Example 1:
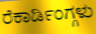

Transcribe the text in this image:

ರೆಕಾರ್ಡಿಂಗ್ಗಳು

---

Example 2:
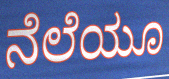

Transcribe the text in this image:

ನೆಲೆಯೂ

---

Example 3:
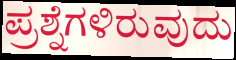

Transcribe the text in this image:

ಪ್ರಶ್ನೆಗಳಿರುವುದು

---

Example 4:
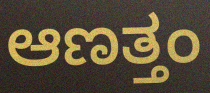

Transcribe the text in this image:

ಆಣತ್ತಂ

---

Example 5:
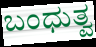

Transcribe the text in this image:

ಬಂಧುತ್ವ